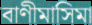
বাণীমাসিমা